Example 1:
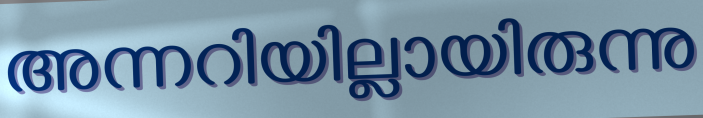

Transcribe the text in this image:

അന്നറിയില്ലായിരുന്നു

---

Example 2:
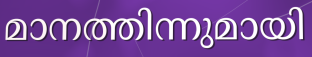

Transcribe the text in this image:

മാനത്തിന്നുമായി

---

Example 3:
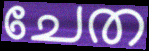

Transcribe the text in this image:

ചേത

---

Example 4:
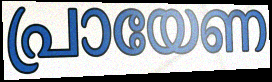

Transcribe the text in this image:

പ്രായേണ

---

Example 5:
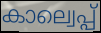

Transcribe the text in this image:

കാല്വെപ്പ്